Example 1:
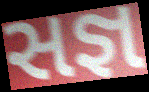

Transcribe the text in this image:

સજ્ઞ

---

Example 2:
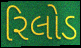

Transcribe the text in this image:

રિલોડ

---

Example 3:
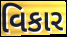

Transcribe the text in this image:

વિકાર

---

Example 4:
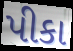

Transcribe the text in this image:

પીકા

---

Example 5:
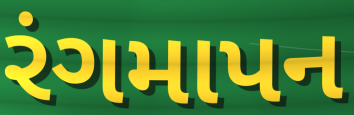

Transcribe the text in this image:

રંગમાપન